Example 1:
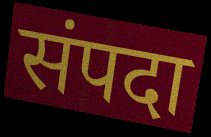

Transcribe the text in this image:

संपदा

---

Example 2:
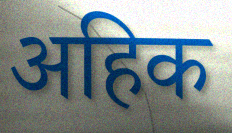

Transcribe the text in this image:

अहिक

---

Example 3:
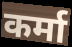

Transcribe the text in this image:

कर्मा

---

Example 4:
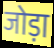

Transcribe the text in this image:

जोड़ा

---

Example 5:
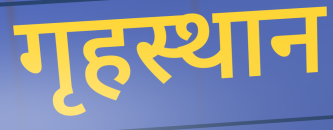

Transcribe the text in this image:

गृहस्थान